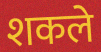
शकले